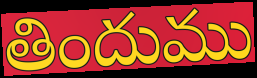
తిందుము